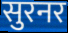
सुरनर